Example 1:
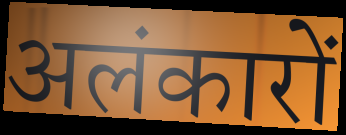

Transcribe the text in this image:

अलंकारों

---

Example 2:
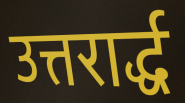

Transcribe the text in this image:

उत्तरार्द्ध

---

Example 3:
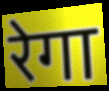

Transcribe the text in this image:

रेगा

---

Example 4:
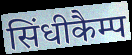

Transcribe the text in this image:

सिंधीकैम्प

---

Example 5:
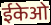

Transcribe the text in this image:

ईकेओ